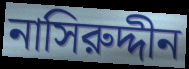
নাসিরুদ্দীন